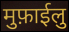
मुफ़ाईलु